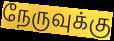
நேருவுக்கு